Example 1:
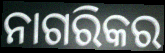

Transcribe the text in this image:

ନାଗରିକର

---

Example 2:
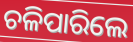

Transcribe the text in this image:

ଚଳିପାରିଲେ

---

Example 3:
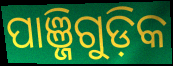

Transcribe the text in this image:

ପାଞ୍ଜିଗୁଡ଼ିକ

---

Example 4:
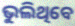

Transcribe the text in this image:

ଭୁଲିଥିବେ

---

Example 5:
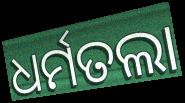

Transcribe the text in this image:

ଧର୍ମତଲା